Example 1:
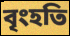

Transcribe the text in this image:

বৃংহতি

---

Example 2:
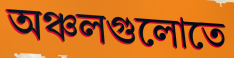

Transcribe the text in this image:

অঞ্চলগুলোতে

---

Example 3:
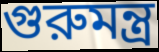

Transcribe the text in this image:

গুরুমন্ত্র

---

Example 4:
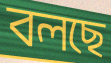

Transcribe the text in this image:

বলছে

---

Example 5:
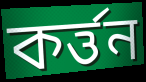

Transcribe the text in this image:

কর্ত্তন